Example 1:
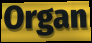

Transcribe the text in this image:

Organ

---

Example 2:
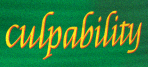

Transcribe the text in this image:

culpability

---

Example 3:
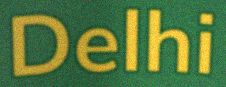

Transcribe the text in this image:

Delhi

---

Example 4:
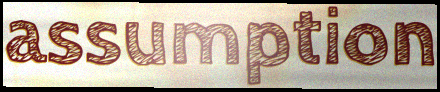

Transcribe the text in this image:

assumption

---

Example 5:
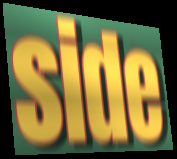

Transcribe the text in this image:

side